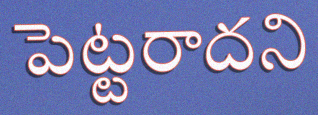
పెట్టరాదని